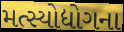
મત્સ્યોદ્યોગના